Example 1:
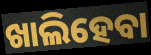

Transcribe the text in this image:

ଖାଲିହେବା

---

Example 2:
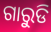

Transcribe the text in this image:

ଗାରୁଡି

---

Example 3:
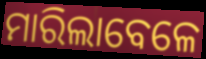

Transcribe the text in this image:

ମାରିଲାବେଳେ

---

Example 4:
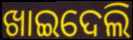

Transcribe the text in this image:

ଖାଇଦେଲି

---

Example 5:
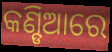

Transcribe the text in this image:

କଣ୍ଡିଆରେ